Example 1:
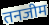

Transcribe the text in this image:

तनजीम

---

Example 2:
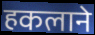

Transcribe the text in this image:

हकलाने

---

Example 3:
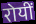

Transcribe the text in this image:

रोयीं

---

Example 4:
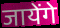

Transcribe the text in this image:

जायेंगे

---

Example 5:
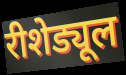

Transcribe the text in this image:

रीशेड्यूल